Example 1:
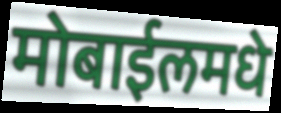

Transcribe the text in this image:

मोबाईलमधे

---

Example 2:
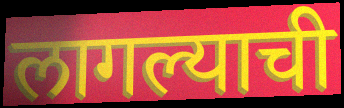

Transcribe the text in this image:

लागल्याची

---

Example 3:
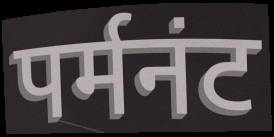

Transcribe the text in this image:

पर्मनंट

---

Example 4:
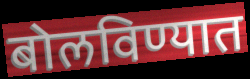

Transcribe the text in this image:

बोलविण्यात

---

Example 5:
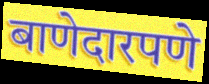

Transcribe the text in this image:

बाणेदारपणे